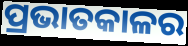
ପ୍ରଭାତକାଳର